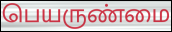
பெயருண்மை